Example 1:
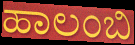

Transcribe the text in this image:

ಹಾಲಂಬಿ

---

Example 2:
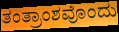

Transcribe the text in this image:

ತಂತ್ರಾಂಶವೊಂದು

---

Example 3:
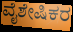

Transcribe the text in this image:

ವೈಶೇಷಿಕರ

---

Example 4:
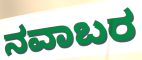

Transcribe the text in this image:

ನವಾಬರ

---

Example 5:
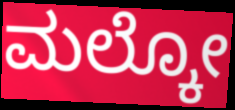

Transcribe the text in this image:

ಮಲ್ಕೋ